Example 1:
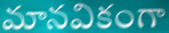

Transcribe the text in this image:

మానవికంగా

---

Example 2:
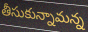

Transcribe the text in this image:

తీసుకున్నామన్న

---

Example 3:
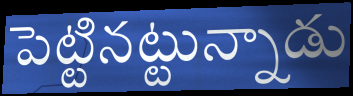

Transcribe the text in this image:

పెట్టినట్టున్నాడు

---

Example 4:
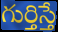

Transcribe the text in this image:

గుర్తిస్తే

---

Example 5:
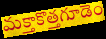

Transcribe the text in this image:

మక్తాకొత్తగూడెం